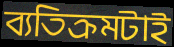
ব্যতিক্রমটাই